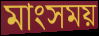
মাংসময়